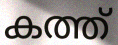
കത്ത്